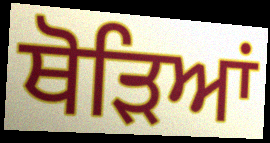
ਥੋੜਿਆਂ